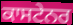
ਕਾਸਟੇਨਰ